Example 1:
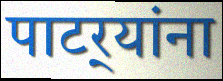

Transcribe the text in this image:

पाटर्यांना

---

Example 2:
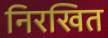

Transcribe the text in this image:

निरखित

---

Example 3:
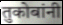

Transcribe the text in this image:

तुकोबांनी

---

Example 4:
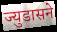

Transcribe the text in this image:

ज्युडासने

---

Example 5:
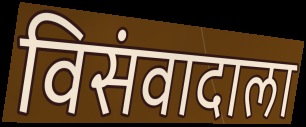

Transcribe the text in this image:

विसंवादाला